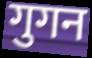
गुगन